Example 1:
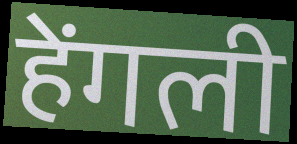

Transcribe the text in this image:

हेंगली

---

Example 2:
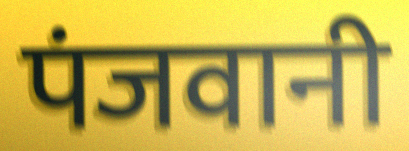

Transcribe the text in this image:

पंजवानी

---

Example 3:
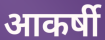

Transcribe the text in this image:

आकर्षी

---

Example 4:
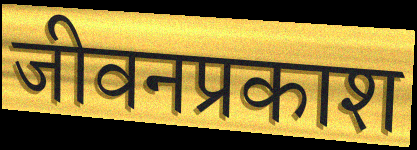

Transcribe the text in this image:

जीवनप्रकाश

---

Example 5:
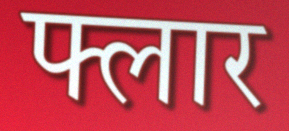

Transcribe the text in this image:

फ्लार